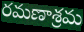
రమణాశ్రమ